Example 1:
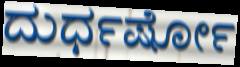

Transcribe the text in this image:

ದುರ್ಧರ್ಷೋ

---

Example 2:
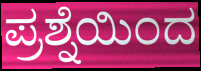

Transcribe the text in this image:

ಪ್ರಶ್ನೆಯಿಂದ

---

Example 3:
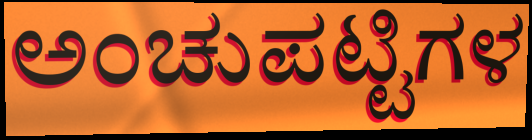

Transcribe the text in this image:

ಅಂಚುಪಟ್ಟಿಗಳ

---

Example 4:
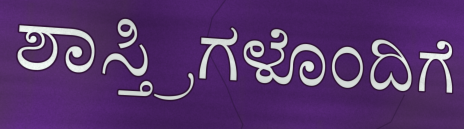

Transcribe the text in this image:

ಶಾಸ್ತ್ರಿಗಳೊಂದಿಗೆ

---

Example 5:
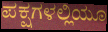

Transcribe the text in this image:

ಪಕ್ಷಗಳಲ್ಲಿಯೂ